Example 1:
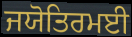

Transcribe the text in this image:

ਜਯੋਤਿਰਮਈ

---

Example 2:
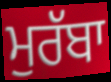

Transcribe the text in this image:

ਮੁਰੱਬਾ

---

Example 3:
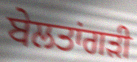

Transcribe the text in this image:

ਬੇਲਤਾਂਗੜੀ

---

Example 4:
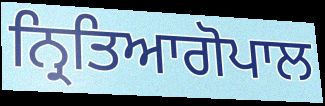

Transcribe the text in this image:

ਨ੍ਰਿਤਿਆਗੋਪਾਲ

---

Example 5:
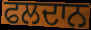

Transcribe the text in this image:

ਫਲਦਾਨ